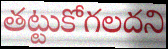
తట్టుకోగలదని